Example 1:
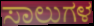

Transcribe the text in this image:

ಸಾಲುಗಳ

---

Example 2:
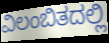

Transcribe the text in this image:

ವಿಲಂಬಿತದಲ್ಲಿ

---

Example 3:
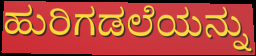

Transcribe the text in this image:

ಹುರಿಗಡಲೆಯನ್ನು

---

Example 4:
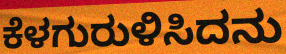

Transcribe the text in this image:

ಕೆಳಗುರುಳಿಸಿದನು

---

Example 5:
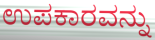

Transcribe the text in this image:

ಉಪಕಾರವನ್ನು